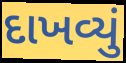
દાખવ્યું